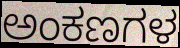
ಅಂಕಣಗಳ